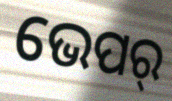
ଭେପର୍